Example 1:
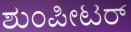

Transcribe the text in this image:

ಶುಂಪೀಟರ್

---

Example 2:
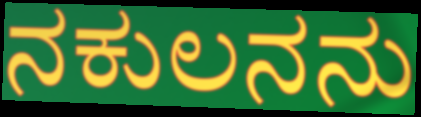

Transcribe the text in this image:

ನಕುಲನನು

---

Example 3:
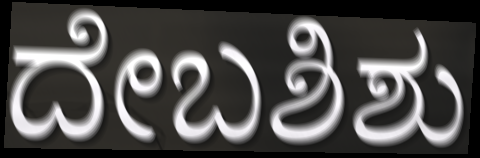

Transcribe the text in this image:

ದೇಬಶಿಶು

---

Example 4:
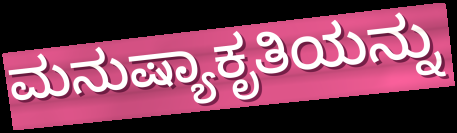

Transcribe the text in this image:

ಮನುಷ್ಯಾಕೃತಿಯನ್ನು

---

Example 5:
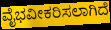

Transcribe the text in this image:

ವೈಭವೀಕರಿಸಲಾಗಿದೆ